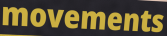
movements